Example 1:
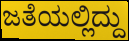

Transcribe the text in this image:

ಜತೆಯಲ್ಲಿದ್ದು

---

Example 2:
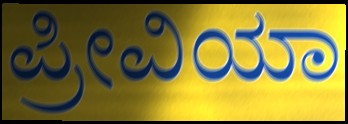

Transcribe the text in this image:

ಪ್ರೀವಿಯಾ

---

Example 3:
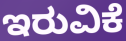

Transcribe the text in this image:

ಇರುವಿಕೆ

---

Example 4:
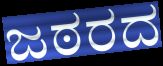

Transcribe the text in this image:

ಜಠರದ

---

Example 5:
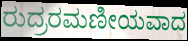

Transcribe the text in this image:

ರುದ್ರರಮಣೀಯವಾದ